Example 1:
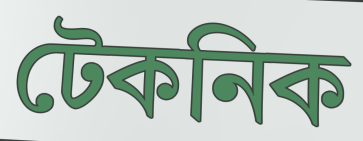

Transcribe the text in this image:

টেকনিক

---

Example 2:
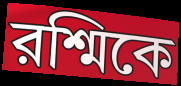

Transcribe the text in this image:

রশ্মিকে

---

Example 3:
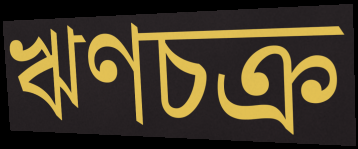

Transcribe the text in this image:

ঋণচক্র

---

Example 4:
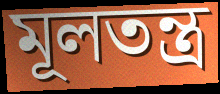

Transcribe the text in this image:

মূলতন্ত্র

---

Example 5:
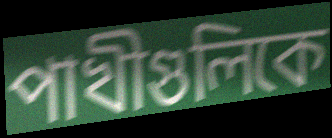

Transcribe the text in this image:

পাখীগুলিকে